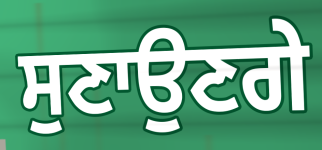
ਸੁਣਾਉਣਗੇ